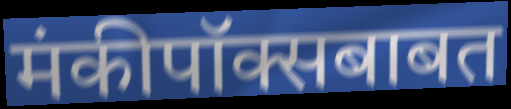
मंकीपॉक्सबाबत